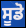
ਸੂਡੋ